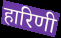
हारिणी